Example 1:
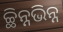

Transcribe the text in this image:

ଚ୍ଛିନ୍ନଭିନ୍ନ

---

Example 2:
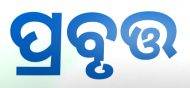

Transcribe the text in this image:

ପ୍ରବୃତ୍ତ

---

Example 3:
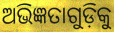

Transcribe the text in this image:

ଅଭିଜ୍ଞତାଗୁଡ଼ିକୁ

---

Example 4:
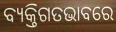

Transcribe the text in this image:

ବ୍ୟକ୍ତିଗତଭାବରେ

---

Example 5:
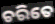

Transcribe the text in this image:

ଚରିତେ